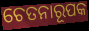
ଚେତନାରୂପକ